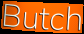
Butch